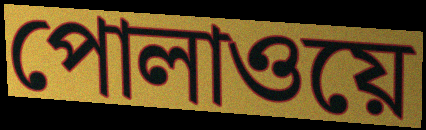
পোলাওয়ে